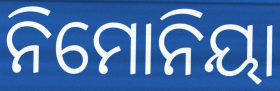
ନିମୋନିୟା